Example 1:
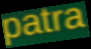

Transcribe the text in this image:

patra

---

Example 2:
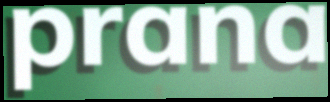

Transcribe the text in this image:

prana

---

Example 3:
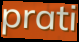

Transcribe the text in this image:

prati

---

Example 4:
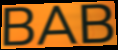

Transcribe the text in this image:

BAB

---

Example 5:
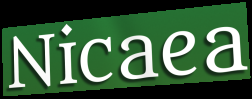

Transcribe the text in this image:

Nicaea